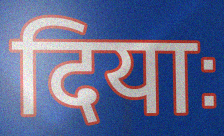
दियाः